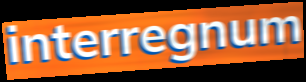
interregnum